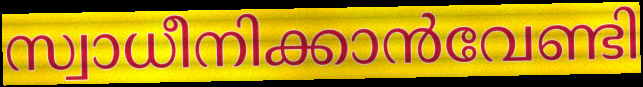
സ്വാധീനിക്കാൻവേണ്ടി